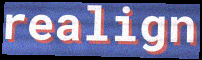
realign